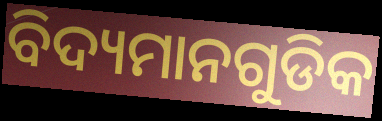
ବିଦ୍ୟମାନଗୁଡିକ